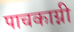
पाचकाग्नी